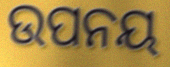
ଉପନୟ